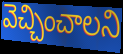
వెచ్చించాలని